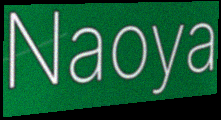
Naoya